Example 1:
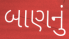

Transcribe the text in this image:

બાણનું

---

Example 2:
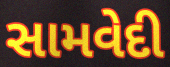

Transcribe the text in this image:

સામવેદી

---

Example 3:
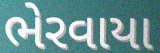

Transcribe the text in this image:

ભેરવાયા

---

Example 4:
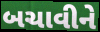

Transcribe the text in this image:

બચાવીને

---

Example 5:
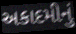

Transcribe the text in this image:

અકાદમીનું